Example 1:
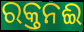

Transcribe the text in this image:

ରକ୍ତନଈ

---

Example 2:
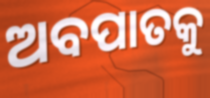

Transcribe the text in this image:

ଅବପାତକୁ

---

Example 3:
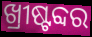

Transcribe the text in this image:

ଖ୍ରୀଷ୍ଟବ୍ଦର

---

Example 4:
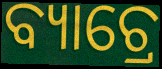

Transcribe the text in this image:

ବ୍ୟାଚ୍ରେ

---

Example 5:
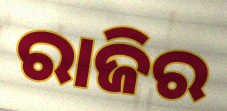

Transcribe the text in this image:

ରାଜିର